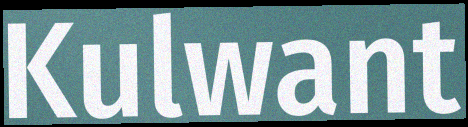
Kulwant